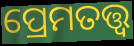
ପ୍ରେମତତ୍ତ୍ୱ